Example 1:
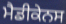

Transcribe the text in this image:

ਮੈਡੀਕੇਨਸ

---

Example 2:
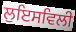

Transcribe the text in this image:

ਲੁਇਸਵਿਲੀ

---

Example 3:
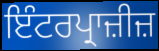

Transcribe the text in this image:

ਇੰਟਰਪ੍ਰਾਜ਼ੀਜ਼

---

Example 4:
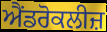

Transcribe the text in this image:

ਐਂਡਰੋਕਲੀਜ਼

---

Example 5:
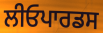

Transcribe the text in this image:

ਲੀਓਪਾਰਡਸ